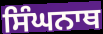
ਸਿੰਘਨਾਥ